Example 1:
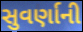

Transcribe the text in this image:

સુવર્ણાની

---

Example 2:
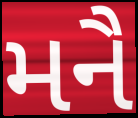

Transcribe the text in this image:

મનૈ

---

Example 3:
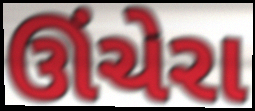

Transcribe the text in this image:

ઊંચેરા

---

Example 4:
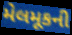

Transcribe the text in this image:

મેલમૂકની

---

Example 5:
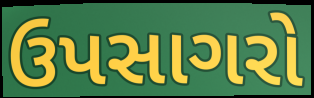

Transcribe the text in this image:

ઉપસાગરો